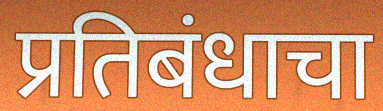
प्रतिबंधाचा